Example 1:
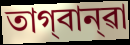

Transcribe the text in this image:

তাগ্‌বান্‌ৱা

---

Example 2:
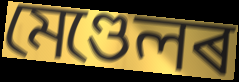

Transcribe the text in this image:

মেণ্ডেলৰ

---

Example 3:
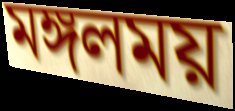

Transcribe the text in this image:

মঙ্গলময়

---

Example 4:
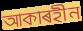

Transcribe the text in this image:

আকাৰহীন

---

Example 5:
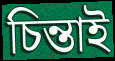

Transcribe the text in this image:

চিন্তাই